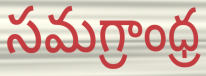
సమగ్రాంధ్ర